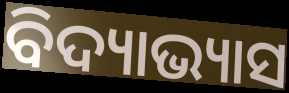
ବିଦ୍ୟାଭ୍ୟାସ